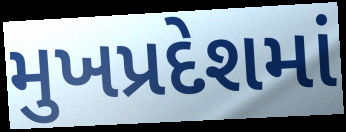
મુખપ્રદેશમાં